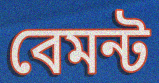
বেমন্ট